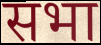
सभा